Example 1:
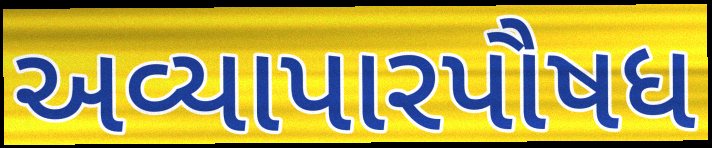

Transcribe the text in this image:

અવ્યાપારપૌષધ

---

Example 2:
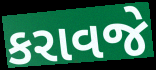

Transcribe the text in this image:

કરાવજે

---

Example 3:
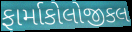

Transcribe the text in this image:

ફાર્માકોલોજીકલ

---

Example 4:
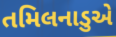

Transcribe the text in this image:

તમિલનાડુએ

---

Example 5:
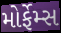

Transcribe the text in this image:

મોર્ફેમ્સ